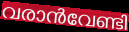
വരാൻവേണ്ടി